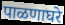
पाळणाघरे